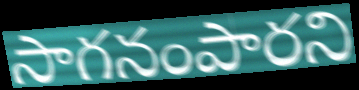
సాగనంపారని